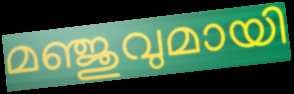
മഞ്ജുവുമായി